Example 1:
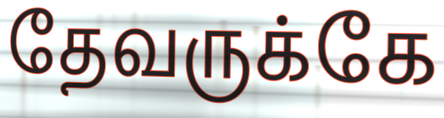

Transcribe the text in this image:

தேவருக்கே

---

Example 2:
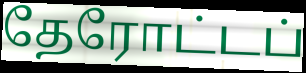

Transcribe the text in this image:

தேரோட்டப்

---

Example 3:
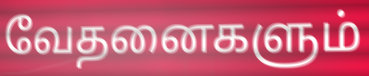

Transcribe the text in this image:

வேதனைகளும்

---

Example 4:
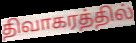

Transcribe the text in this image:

திவாகரத்தில்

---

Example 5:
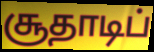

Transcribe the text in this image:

சூதாடிப்